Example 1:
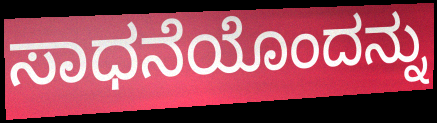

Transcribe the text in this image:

ಸಾಧನೆಯೊಂದನ್ನು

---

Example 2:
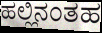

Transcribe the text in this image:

ಹಲ್ಲಿನಂತಹ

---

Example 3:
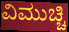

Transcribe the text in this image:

ವಿಮುಚ್ಚಿ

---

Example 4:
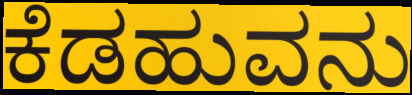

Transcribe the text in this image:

ಕೆಡಹುವನು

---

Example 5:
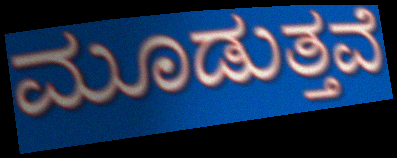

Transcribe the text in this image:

ಮೂಡುತ್ತವೆ